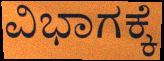
ವಿಭಾಗಕ್ಕೆ